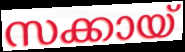
സക്കായ്